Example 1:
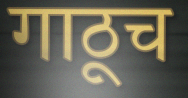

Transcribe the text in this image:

गाठूच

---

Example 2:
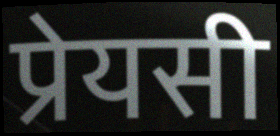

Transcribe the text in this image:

प्रेयसी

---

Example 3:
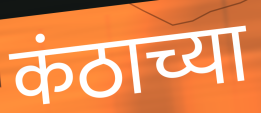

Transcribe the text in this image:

कंठाच्या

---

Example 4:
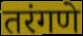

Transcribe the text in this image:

तरंगणे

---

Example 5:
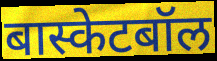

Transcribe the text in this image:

बास्केटबॉल